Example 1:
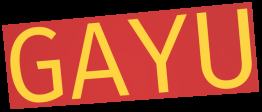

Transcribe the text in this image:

GAYU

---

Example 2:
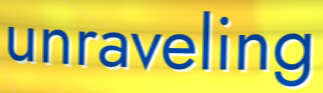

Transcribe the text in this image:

unraveling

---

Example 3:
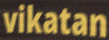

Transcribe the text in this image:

vikatan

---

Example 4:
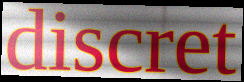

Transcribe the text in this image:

discret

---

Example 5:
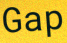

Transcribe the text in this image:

Gap